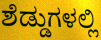
ಶೆಡ್ಡುಗಳಲ್ಲಿ